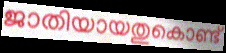
ജാതിയായതുകൊണ്ട്